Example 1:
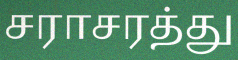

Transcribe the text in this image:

சராசரத்து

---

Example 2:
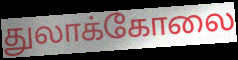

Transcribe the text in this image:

துலாக்கோலை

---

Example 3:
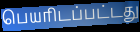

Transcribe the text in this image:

பெயரிடப்பட்டது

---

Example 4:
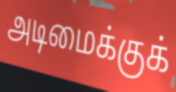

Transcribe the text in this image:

அடிமைக்குக்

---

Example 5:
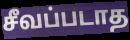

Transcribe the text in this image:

சீவப்படாத